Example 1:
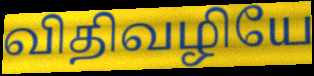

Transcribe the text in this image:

விதிவழியே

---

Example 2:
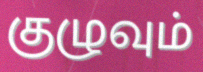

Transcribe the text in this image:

குழுவும்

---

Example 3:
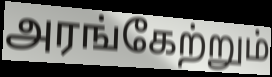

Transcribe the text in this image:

அரங்கேற்றும்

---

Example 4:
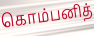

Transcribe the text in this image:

கொம்பனித்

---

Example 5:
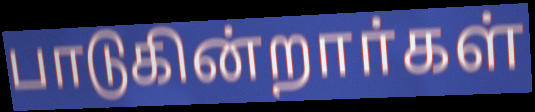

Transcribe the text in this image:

பாடுகின்றார்கள்